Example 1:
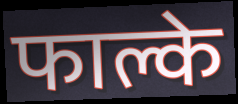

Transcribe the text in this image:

फाल्के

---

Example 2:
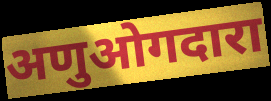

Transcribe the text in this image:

अणुओगदारा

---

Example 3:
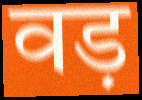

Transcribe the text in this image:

वड़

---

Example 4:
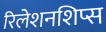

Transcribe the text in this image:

रिलेशनशिप्स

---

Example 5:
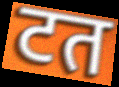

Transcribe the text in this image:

टत